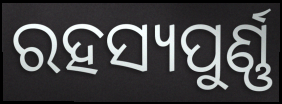
ରହସ୍ୟପୁର୍ଣ୍ଣ